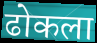
ढोकला